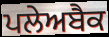
ਪਲੇਅਬੈਕ